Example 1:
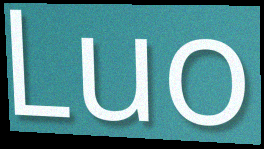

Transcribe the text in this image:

Luo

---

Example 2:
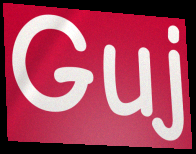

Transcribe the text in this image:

Guj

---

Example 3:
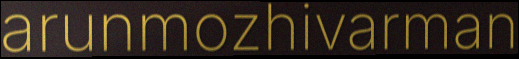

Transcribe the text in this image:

arunmozhivarman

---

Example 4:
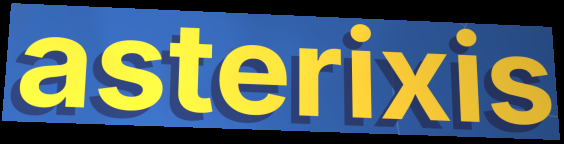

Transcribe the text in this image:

asterixis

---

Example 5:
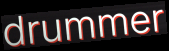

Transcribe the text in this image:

drummer